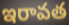
ఇరావత